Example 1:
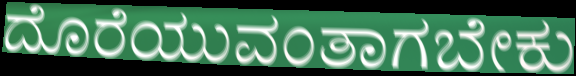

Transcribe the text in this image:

ದೊರೆಯುವಂತಾಗಬೇಕು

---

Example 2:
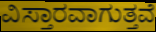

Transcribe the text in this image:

ವಿಸ್ತಾರವಾಗುತ್ತವೆ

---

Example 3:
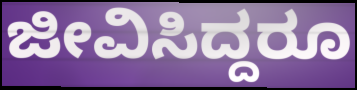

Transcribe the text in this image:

ಜೀವಿಸಿದ್ದರೂ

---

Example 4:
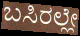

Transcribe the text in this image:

ಬಸಿರಲ್ಲೇ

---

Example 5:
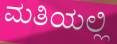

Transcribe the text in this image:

ಮತಿಯಲ್ಲಿ